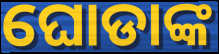
ଘୋଡାଙ୍କ